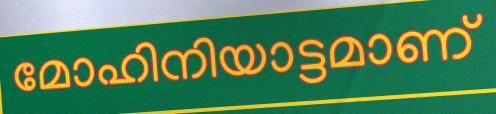
മോഹിനിയാട്ടമാണ്